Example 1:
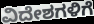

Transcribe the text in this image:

ವಿದೇಶಗಳಿಗೆ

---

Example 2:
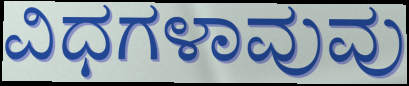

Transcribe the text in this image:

ವಿಧಗಳಾವುವು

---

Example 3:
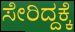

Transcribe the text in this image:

ಸೇರಿದ್ದಕ್ಕೆ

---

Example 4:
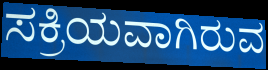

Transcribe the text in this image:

ಸಕ್ರಿಯವಾಗಿರುವ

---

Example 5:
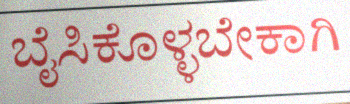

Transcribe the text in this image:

ಬೈಸಿಕೊಳ್ಳಬೇಕಾಗಿ